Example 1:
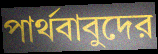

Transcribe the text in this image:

পার্থবাবুদের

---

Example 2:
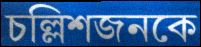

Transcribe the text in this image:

চল্লিশজনকে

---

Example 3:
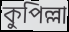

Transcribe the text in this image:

কুপিল্লা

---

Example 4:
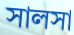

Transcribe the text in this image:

সালসা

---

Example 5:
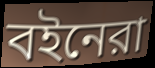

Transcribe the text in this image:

বইনেরা